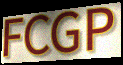
FCGP